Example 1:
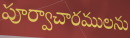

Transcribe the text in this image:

పూర్వాచారములను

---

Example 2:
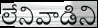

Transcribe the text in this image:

లేనివాడిని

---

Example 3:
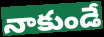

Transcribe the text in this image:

నాకుండే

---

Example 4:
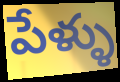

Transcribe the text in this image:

పేళ్ళు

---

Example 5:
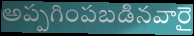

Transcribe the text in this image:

అప్పగింపబడినవారై